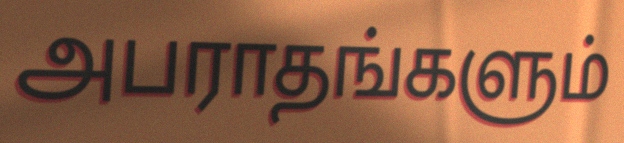
அபராதங்களும்